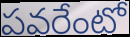
పవరేంటో